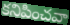
కనిపించవా